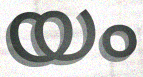
യം